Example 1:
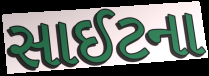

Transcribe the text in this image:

સાઈટના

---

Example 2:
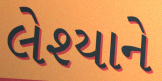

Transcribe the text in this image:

લેશ્યાને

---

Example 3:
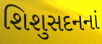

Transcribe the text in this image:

શિશુસદનનાં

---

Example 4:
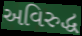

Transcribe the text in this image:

અવિરુદ્ધ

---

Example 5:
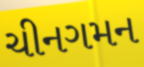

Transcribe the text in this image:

ચીનગમન